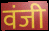
वंजी